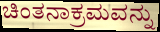
ಚಿಂತನಾಕ್ರಮವನ್ನು